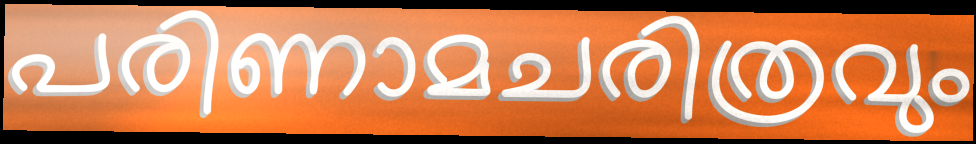
പരിണാമചരിത്രവും